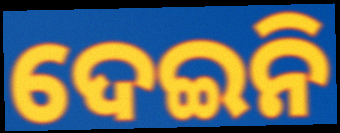
ଦେଇନି